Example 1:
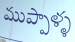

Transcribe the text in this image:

ముప్పాళ్ళ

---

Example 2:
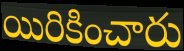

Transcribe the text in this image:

యిరికించారు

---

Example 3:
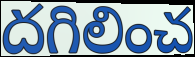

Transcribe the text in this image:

దగిలించ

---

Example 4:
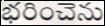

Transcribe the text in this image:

భరించెను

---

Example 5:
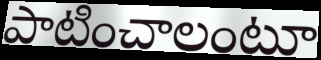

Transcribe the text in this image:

పాటించాలంటూ